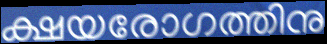
ക്ഷയരോഗത്തിനു